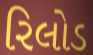
રિલોડ